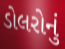
ડોલરોનું